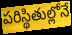
పరిస్థితుల్లోనే